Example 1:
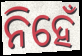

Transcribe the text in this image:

ନିହେଁ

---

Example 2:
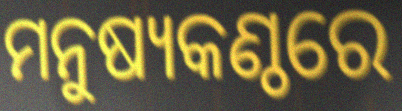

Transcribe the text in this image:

ମନୁଷ୍ୟକଣ୍ଠରେ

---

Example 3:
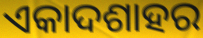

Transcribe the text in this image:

ଏକାଦଶାହର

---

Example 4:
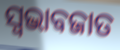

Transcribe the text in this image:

ସ୍ୱଭାବଜାତ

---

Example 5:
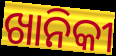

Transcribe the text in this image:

ଖାନିକୀ